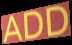
ADD